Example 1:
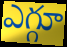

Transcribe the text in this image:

ఎగ్గూ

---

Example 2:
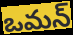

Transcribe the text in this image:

ఒమన్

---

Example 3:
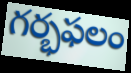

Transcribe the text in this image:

గర్భఫలం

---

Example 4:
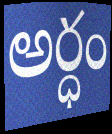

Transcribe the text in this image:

అర్ధం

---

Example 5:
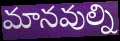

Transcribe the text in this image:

మానవుల్ని